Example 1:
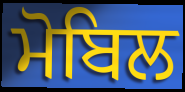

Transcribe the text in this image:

ਮੋਬਿਲ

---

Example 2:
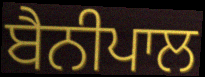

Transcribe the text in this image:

ਬੈਨੀਪਾਲ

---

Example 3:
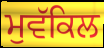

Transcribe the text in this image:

ਮੁਵੱਕਿਲ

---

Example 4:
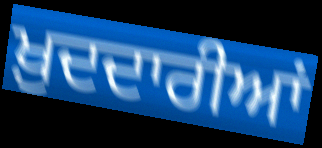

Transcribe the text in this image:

ਖ਼ੁਦਦਾਰੀਆਂ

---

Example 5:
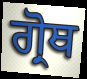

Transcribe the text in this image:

ਗ੍ਰੋਥ